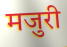
मजुरी